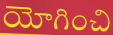
యోగించి